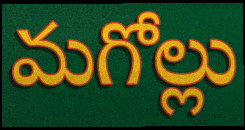
మగోల్లు